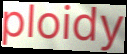
ploidy